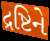
દ્રષ્ટિને